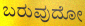
ಬರುವುದೋ